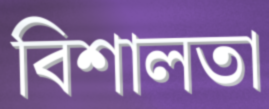
বিশালতা